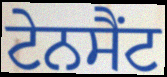
ਟੇਨਸੈਂਟ